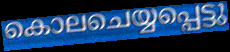
കൊലചെയ്യപ്പെട്ടു